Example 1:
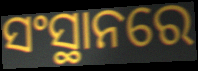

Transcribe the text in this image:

ସଂସ୍ଥାନରେ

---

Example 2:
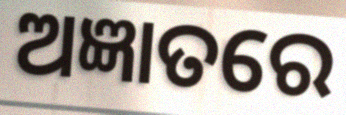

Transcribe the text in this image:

ଅଜ୍ଞାତରେ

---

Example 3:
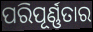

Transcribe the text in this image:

ପରିପୂର୍ଣ୍ଣତାର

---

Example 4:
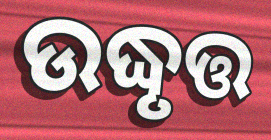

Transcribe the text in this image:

ଉଦ୍ଧୃତ୍ତ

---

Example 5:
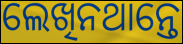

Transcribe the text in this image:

ଲେଖିନଥାନ୍ତେ